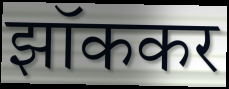
झॉककर